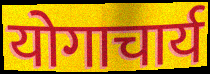
योगाचार्य